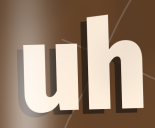
uh